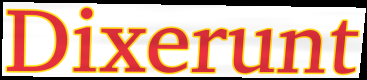
Dixerunt